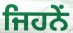
ਜਿਹਨੇਂ